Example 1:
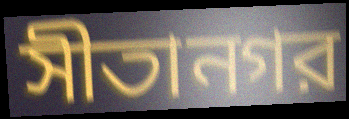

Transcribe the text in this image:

সীতানগর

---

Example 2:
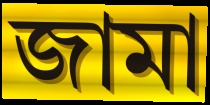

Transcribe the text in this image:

জামা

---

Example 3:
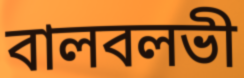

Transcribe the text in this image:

বালবলভী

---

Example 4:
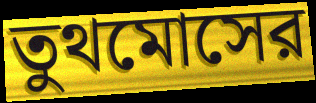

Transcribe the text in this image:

তুথমোসের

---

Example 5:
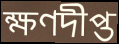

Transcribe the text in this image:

ক্ষণদীপ্ত